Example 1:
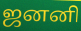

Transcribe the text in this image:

ஜனனி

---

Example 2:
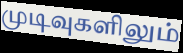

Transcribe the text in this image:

முடிவுகளிலும்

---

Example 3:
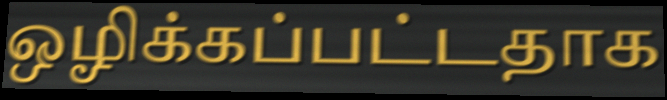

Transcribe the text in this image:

ஒழிக்கப்பட்டதாக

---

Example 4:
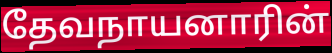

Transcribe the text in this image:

தேவநாயனாரின்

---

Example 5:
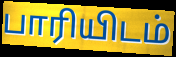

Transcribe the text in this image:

பாரியிடம்